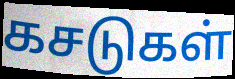
கசடுகள்